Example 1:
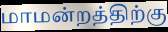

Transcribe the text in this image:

மாமன்றத்திற்கு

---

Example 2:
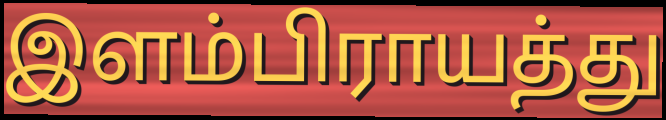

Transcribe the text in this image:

இளம்பிராயத்து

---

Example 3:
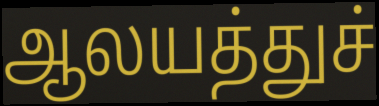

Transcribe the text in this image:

ஆலயத்துச்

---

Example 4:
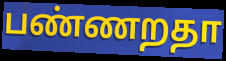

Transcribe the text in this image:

பண்ணறதா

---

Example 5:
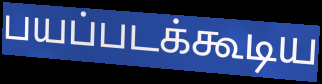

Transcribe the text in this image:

பயப்படக்கூடிய